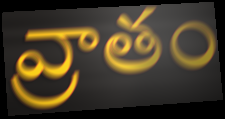
వ్రాతం